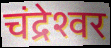
चंद्रेश्वर